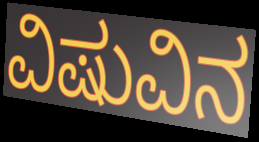
ವಿಷುವಿನ